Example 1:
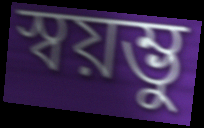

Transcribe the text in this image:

স্বয়ম্ভু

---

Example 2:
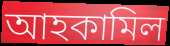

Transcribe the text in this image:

আহকামিল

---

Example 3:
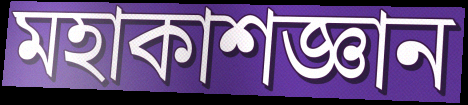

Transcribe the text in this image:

মহাকাশজ্ঞান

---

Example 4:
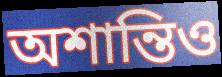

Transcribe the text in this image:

অশান্তিও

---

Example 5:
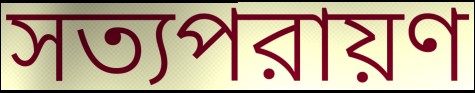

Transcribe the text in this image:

সত্যপরায়ণ